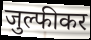
जुल्फीकर